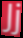
Jj